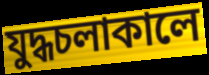
যুদ্ধচলাকালে